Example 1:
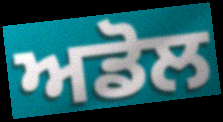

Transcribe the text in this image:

ਅਡੋਲ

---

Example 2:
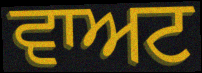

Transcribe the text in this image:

ਵਾਅਟ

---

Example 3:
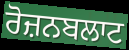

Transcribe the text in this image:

ਰੋਜ਼ਨਬਲਾਟ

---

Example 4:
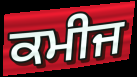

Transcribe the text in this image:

ਕਮੀਜ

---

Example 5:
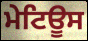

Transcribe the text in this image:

ਮੇਟਿਊਸ